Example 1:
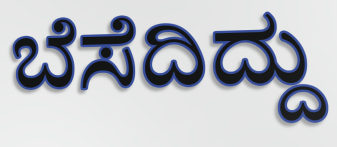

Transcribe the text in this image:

ಬೆಸೆದಿದ್ದು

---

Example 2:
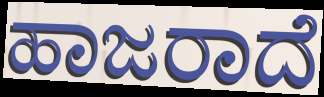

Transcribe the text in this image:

ಹಾಜರಾದೆ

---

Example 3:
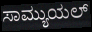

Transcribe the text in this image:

ಸಾಮ್ಯುಯಲ್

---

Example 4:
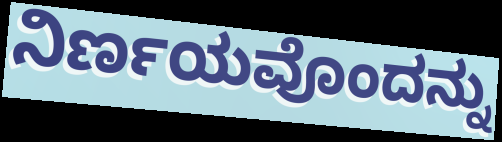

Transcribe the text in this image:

ನಿರ್ಣಯವೊಂದನ್ನು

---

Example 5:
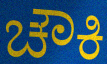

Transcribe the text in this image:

ಚೌಕಿ